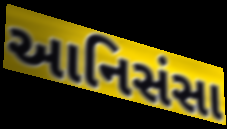
આનિસંસા